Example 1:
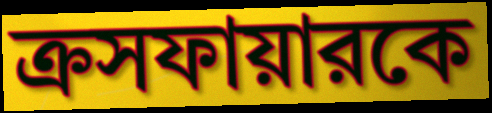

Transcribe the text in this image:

ক্রসফায়ারকে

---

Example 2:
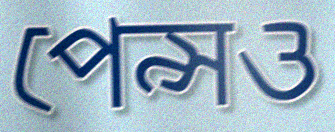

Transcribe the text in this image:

পেন্সও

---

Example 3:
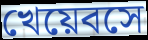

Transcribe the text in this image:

খেয়েবসে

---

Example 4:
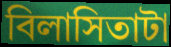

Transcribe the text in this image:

বিলাসিতাটা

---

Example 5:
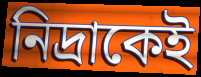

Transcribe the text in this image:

নিদ্রাকেই